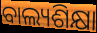
ବାଲ୍ୟଶିକ୍ଷା